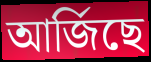
আৰ্জিছে